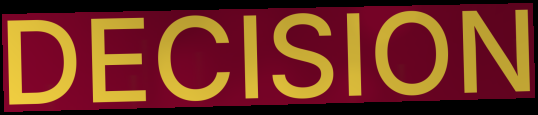
DECISION